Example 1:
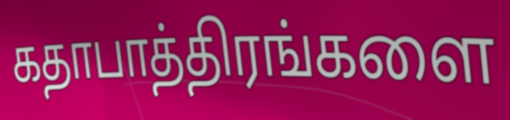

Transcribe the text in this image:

கதாபாத்திரங்களை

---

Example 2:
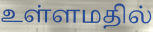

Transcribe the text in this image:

உள்ளமதில்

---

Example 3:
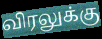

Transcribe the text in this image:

விரலுக்கு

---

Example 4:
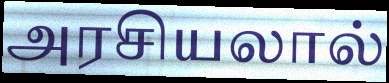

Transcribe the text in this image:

அரசியலால்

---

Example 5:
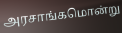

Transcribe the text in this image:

அரசாங்கமொன்று